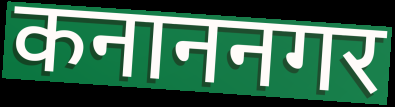
कनाननगर